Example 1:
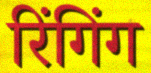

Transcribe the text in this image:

रिंगिंग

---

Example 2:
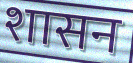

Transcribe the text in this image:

शासन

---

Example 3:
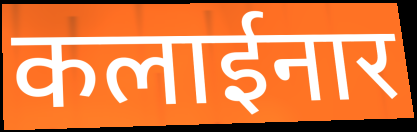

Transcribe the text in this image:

कलाईनार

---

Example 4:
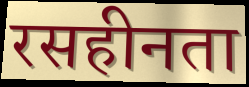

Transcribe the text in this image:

रसहीनता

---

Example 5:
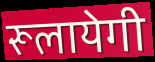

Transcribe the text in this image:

रूलायेगी